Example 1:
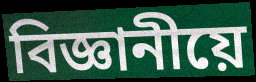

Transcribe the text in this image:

বিজ্ঞানীয়ে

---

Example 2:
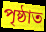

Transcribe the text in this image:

পৃষ্ঠাত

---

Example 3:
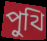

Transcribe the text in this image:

পুথি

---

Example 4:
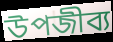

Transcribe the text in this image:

উপজীব্য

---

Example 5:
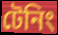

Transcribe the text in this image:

টেনিং